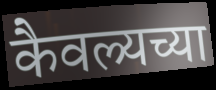
कैवल्यच्या